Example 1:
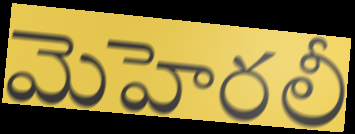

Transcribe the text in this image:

మెహెరలీ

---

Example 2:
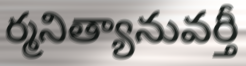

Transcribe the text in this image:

ర్మనిత్యానువర్తీ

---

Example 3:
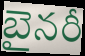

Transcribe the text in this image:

బైనరీ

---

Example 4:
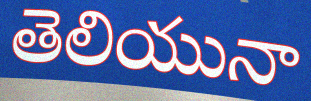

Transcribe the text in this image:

తెలియునా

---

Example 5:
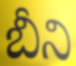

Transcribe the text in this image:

బీని